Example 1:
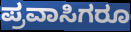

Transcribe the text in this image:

ಪ್ರವಾಸಿಗರೂ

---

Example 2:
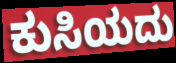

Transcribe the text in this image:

ಕುಸಿಯದು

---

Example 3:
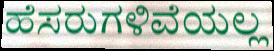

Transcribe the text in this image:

ಹೆಸರುಗಳಿವೆಯಲ್ಲ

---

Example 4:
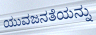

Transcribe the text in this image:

ಯುವಜನತೆಯನ್ನು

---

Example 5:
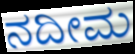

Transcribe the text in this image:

ನದೀಮ